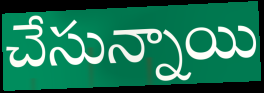
చేసున్నాయి